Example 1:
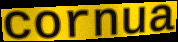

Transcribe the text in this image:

cornua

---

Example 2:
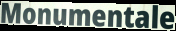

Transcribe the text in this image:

Monumentale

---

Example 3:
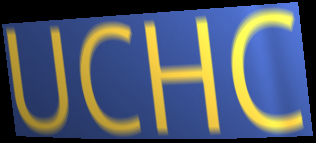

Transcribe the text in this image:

UCHC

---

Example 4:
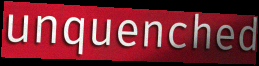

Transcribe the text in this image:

unquenched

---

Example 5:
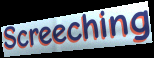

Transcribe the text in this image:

Screeching